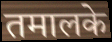
तमालके